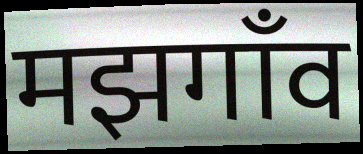
मझगाँव